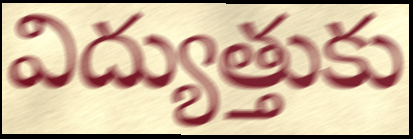
విద్యుత్తుకు